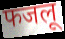
फजलू